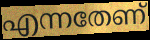
എന്നതേണ്